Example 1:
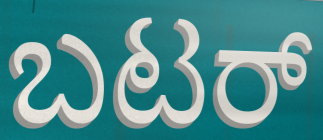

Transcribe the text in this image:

ಬಟರ್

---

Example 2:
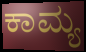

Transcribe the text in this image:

ಕಾಮ್ಯ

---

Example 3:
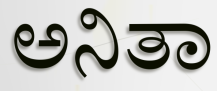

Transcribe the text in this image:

ಅನಿತಾ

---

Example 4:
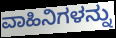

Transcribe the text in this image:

ವಾಹಿನಿಗಳನ್ನು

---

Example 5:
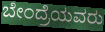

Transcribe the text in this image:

ಬೇಂದ್ರೆಯವರು